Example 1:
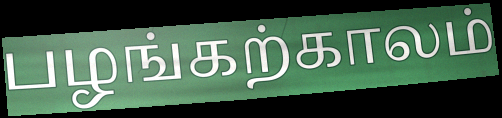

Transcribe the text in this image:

பழங்கற்காலம்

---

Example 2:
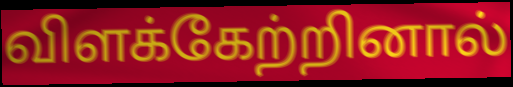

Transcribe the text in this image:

விளக்கேற்றினால்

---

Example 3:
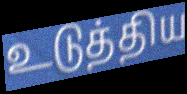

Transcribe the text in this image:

உடுத்திய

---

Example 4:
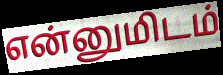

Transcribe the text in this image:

என்னுமிடம்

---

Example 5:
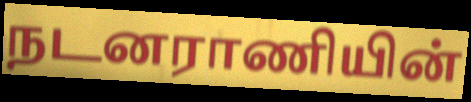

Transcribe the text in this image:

நடனராணியின்